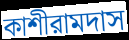
কাশীরামদাস